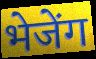
भेजेंग